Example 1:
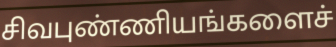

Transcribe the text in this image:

சிவபுண்ணியங்களைச்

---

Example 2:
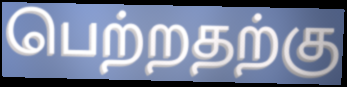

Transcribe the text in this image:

பெற்றதற்கு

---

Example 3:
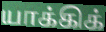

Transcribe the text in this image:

யாக்கிக்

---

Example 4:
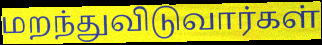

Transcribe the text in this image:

மறந்துவிடுவார்கள்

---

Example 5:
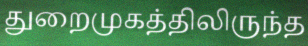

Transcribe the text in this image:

துறைமுகத்திலிருந்த